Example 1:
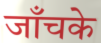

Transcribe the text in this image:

जाँचके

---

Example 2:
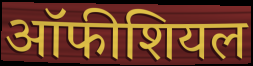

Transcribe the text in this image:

ऑफीशियल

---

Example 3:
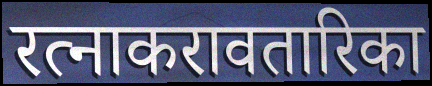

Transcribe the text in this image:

रत्नाकरावतारिका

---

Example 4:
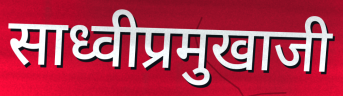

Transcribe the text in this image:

साध्वीप्रमुखाजी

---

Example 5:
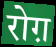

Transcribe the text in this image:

रोग़